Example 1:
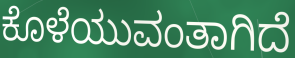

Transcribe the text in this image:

ಕೊಳೆಯುವಂತಾಗಿದೆ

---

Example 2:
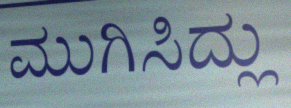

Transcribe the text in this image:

ಮುಗಿಸಿದ್ಲು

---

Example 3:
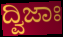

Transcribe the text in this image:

ದ್ವಿಜಾಃ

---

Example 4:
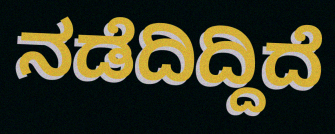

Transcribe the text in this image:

ನಡೆದಿದ್ದಿದೆ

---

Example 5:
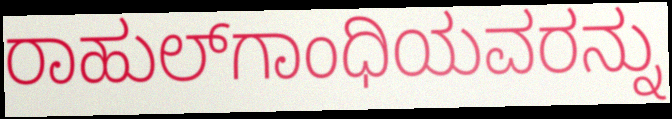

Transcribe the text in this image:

ರಾಹುಲ್‌ಗಾಂಧಿಯವರನ್ನು